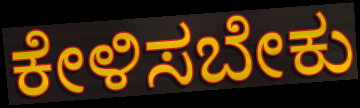
ಕೇಳಿಸಬೇಕು